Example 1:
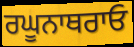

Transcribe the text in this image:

ਰਘੂਨਾਥਰਾਓ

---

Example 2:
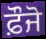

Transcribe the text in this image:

ਫ਼ੌਜੋ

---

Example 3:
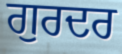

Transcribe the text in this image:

ਗੁਰਦਰ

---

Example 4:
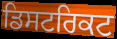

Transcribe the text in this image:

ਡਿਸਟਰਿਕਟ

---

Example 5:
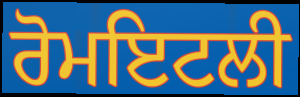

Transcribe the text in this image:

ਰੋਮਇਟਲੀ